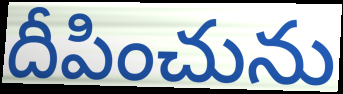
దీపించును